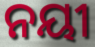
ନୟୀ